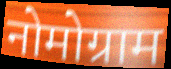
नोमोग्राम